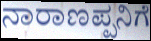
ನಾರಾಣಪ್ಪನಿಗೆ